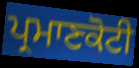
ਪ੍ਰਮਾਣਕੋਟੀ